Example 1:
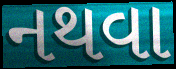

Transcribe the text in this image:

નથવા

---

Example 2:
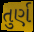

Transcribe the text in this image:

તુર્ણ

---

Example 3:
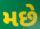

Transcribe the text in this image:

મછે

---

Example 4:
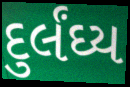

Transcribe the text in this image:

દુર્લંઘ્ય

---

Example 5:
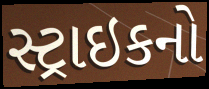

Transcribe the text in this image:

સ્ટ્રાઇકનો